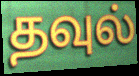
தவுல்